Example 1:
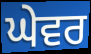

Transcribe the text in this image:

ਘੇਵਰ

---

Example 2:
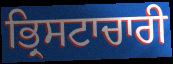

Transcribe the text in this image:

ਭ੍ਰਿਸਟਾਚਾਰੀ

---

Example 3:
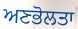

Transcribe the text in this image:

ਅਣਭੋਲਤਾ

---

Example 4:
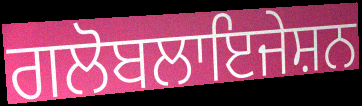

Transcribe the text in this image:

ਗਲੋਬਲਾਇਜੇਸ਼ਨ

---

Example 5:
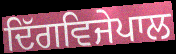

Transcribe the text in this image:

ਦਿੱਗਵਿਜੇਪਾਲ